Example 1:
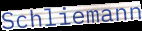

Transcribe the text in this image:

Schliemann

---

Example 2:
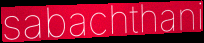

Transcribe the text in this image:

sabachthani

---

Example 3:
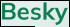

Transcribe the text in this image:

Besky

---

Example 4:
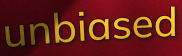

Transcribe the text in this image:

unbiased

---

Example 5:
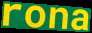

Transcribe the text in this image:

rona